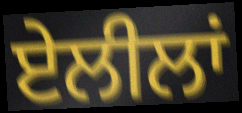
ਏਲੀਲਾਂ